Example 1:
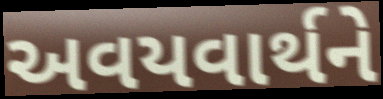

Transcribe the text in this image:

અવયવાર્થને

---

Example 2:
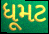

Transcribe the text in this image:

ધૂમટ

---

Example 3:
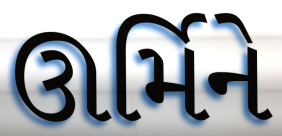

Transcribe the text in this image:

ઊર્મિને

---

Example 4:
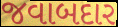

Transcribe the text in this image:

જવાબદાર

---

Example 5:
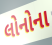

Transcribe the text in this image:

લોનોના